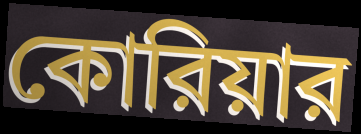
কোরিয়ার